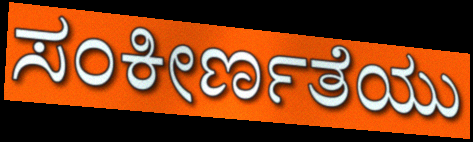
ಸಂಕೀರ್ಣತೆಯು